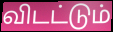
விடட்டும்